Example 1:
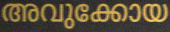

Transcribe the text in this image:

അവുക്കോയ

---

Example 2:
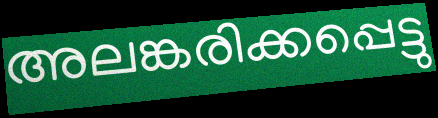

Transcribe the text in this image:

അലങ്കരിക്കപ്പെട്ടു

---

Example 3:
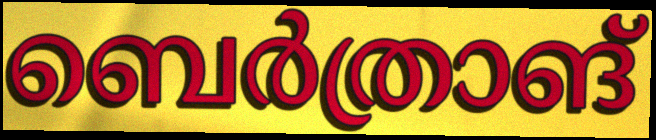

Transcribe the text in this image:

ബെർത്രാങ്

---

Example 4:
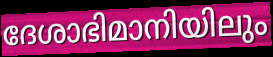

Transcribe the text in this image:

ദേശാഭിമാനിയിലും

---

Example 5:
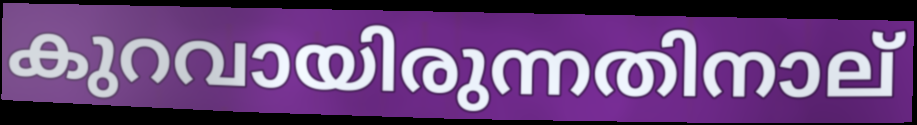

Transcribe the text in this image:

കുറവായിരുന്നതിനാല്